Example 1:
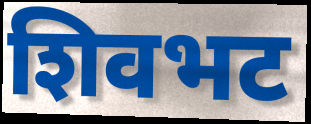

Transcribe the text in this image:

शिवभट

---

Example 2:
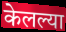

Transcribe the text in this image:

केलल्या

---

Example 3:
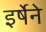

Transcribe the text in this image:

इर्षेने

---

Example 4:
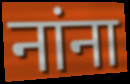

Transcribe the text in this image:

नांना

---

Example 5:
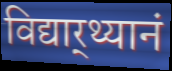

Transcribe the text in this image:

विद्यार्थ्यानं